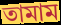
তামাম